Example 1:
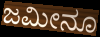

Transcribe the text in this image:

ಜಮೀನೂ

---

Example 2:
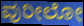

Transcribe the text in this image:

ವುರೀಲೋ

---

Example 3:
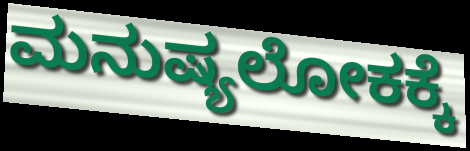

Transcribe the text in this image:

ಮನುಷ್ಯಲೋಕಕ್ಕೆ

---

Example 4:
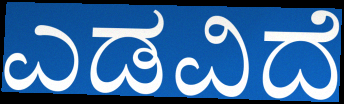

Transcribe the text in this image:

ಎಡವಿದೆ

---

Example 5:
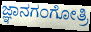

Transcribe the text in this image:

ಜ್ಞಾನಗಂಗೋತ್ರಿ